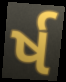
ર્ષ